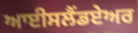
ਆਈਸਲੈਂਡਏਅਰ